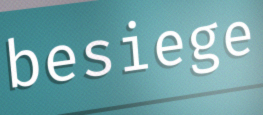
besiege